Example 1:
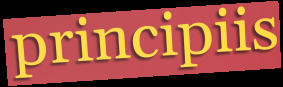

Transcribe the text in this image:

principiis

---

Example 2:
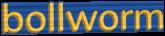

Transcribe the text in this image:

bollworm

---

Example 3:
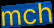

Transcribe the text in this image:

mch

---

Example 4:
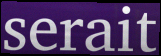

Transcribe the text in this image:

serait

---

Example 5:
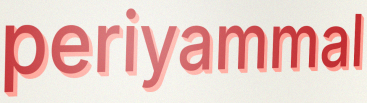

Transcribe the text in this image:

periyammal